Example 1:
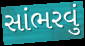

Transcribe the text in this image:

સાંભરવું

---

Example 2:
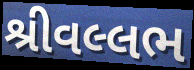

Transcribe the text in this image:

શ્રીવલ્લભ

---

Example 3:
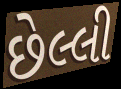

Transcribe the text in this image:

છેલ્લી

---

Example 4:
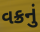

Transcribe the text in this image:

વક્રનું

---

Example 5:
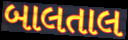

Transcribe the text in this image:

બાલતાલ